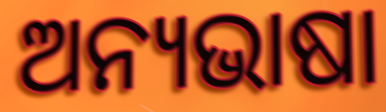
ଅନ୍ୟଭାଷା